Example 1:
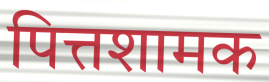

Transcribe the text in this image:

पित्तशामक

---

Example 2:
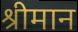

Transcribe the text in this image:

श्रीमान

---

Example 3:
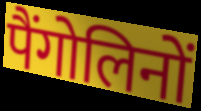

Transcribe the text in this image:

पैंगोलिनों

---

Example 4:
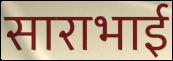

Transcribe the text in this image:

साराभाई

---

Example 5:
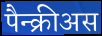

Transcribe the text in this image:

पैन्क्रीअस